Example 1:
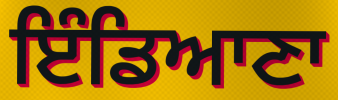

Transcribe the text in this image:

ਇੰਡਿਆਣਾ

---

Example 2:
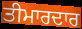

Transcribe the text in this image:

ਤੀਮਾਰਦਾਰ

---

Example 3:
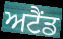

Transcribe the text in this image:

ਅਟੈਂਡ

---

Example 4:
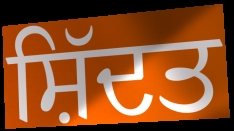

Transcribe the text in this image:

ਸ਼ਿੱਦਤ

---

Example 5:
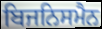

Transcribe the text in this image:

ਬਿਜਨਿਸਮੈਨ